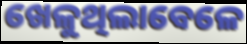
ଖେଳୁଥିଲାବେଳେ